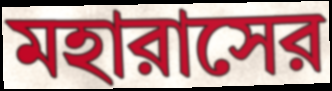
মহারাসের